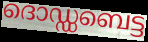
ദൊഡ്ഡബെട്ട